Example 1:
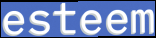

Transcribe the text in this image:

esteem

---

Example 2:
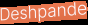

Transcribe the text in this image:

Deshpande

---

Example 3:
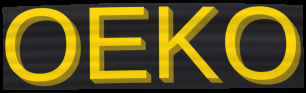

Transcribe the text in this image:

OEKO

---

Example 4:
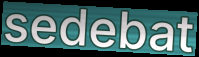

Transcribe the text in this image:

sedebat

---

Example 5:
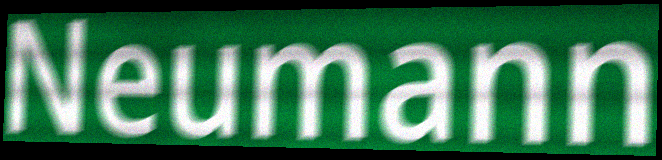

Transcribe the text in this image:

Neumann